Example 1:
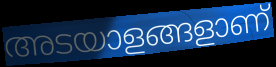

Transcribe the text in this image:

അടയാളങ്ങളാണ്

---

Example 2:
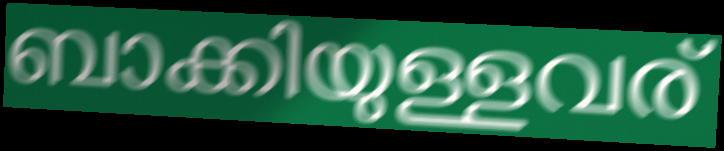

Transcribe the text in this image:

ബാക്കിയുള്ളവര്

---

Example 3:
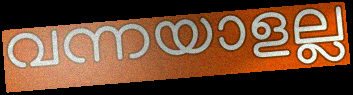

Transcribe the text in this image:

വന്നയാളല്ല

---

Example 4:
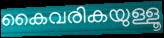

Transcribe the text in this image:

കൈവരികയുള്ളൂ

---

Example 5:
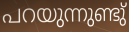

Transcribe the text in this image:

പറയുന്നുണ്ടു്